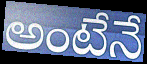
అంటేనే